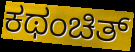
ಕಥಂಚಿತ್